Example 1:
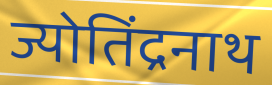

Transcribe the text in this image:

ज्योतिंद्रनाथ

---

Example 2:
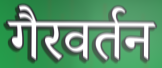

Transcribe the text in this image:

गैरवर्तन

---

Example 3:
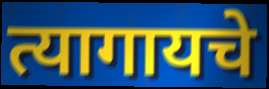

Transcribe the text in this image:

त्यागायचे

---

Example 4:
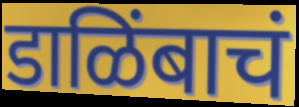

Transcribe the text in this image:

डाळिंबाचं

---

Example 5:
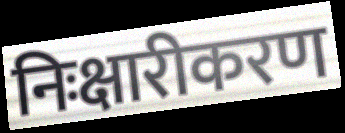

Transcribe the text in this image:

निःक्षारीकरण